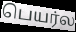
பெயர்ல